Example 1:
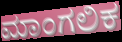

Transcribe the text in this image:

ಮಾಂಗಲಿಕ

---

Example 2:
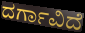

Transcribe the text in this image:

ದರ್ಗಾವಿದೆ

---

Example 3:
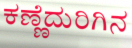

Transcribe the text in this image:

ಕಣ್ಣೆದುರಿಗಿನ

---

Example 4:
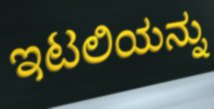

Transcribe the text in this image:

ಇಟಲಿಯನ್ನು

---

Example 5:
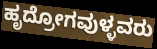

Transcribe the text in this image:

ಹೃದ್ರೋಗವುಳ್ಳವರು